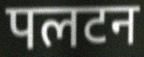
पलटन